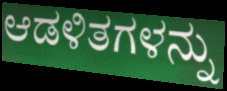
ಆಡಳಿತಗಳನ್ನು